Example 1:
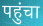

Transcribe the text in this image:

पहुंचा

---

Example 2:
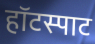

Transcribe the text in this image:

हॉटस्पाट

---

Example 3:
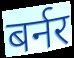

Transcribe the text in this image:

बर्नर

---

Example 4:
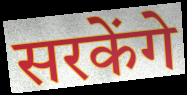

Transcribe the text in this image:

सरकेंगे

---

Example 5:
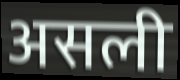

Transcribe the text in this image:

असली